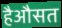
हैऔसत